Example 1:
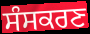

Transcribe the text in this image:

ਸੰਸਕਰਣ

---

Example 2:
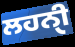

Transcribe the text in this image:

ਲਹਨੑੀ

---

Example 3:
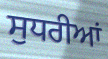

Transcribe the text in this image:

ਸੁਧਰੀਆਂ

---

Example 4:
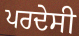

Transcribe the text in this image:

ਪਰਦੇਸੀ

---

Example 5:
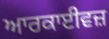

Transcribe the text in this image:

ਆਰਕਾਈਵਜ਼